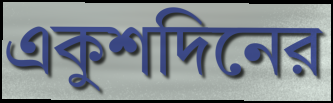
একুশদিনের